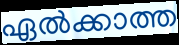
ഏൽക്കാത്ത